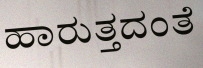
ಹಾರುತ್ತದಂತೆ